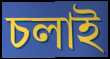
চলাই